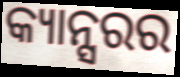
କ୍ୟାନ୍ସରର